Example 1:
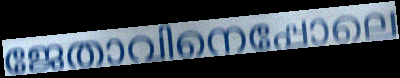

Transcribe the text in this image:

ജേതാവിനെപ്പോലെ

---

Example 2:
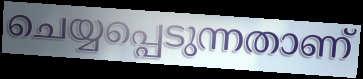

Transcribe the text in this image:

ചെയ്യപ്പെടുന്നതാണ്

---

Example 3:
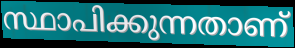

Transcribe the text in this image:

സ്ഥാപിക്കുന്നതാണ്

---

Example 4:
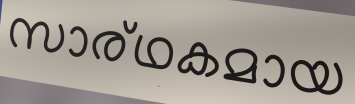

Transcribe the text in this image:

സാര്ഥകമായ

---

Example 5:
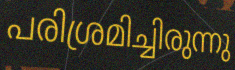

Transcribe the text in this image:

പരിശ്രമിച്ചിരുന്നു